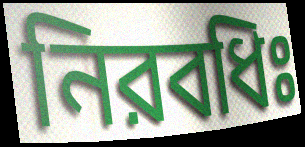
নিরবধিঃ